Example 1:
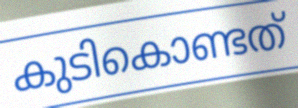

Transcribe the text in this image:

കുടികൊണ്ടത്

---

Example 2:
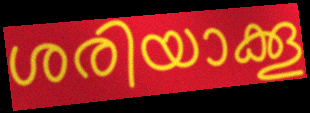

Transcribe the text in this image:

ശരിയാക്കൂ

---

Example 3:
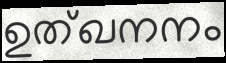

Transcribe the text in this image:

ഉത്ഖനനം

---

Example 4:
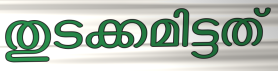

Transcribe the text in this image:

തുടക്കമിട്ടത്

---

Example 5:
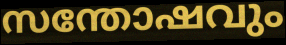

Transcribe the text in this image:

സന്തോഷവും